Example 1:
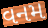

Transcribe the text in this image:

વનમ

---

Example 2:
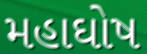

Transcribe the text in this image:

મહાઘોષ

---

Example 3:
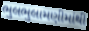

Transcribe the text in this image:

ભુલભુલામણીમાંથી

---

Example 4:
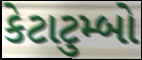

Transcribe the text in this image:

કેટાટુમ્બો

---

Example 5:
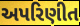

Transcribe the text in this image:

અપરિણીત